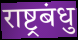
राष्ट्रबंधु